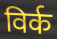
विर्क